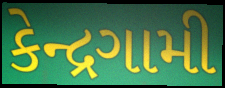
કેન્દ્રગામી